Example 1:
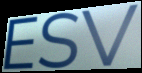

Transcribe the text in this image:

ESV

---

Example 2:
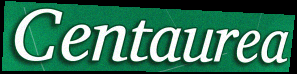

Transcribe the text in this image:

Centaurea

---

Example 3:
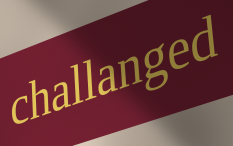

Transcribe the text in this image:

challanged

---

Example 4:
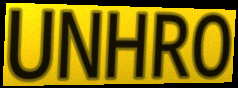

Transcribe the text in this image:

UNHRO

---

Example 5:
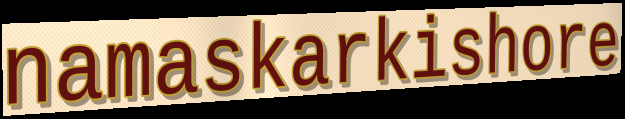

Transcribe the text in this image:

namaskarkishore